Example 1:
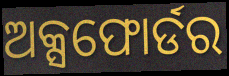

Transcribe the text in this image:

ଅକ୍ସଫୋର୍ଡର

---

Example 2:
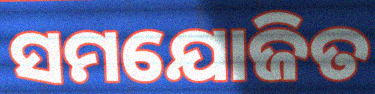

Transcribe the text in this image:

ସମଯୋଜିତ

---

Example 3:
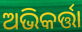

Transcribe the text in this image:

ଅଭିକର୍ତ୍ତା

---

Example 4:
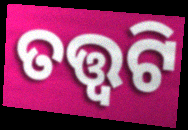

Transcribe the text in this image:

ତତ୍ତ୍ଵଟି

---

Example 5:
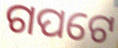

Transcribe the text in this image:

ଗପଟେ